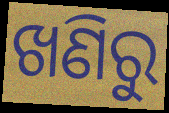
ଖଣିରୁ